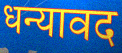
धन्यावद